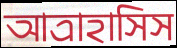
আত্রাহাসিস